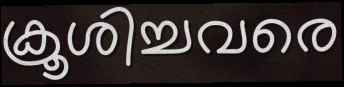
ക്രൂശിച്ചവരെ